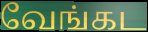
வேங்கட